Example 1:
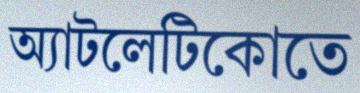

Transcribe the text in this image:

অ্যাটলেটিকোতে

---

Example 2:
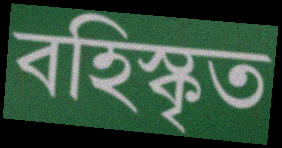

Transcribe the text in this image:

বহিস্কৃত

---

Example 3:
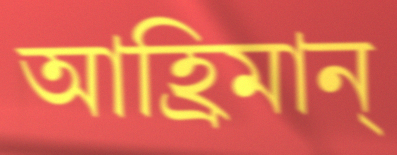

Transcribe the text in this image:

আহ্রিমান্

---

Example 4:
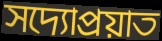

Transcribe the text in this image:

সদ্যোপ্রয়াত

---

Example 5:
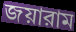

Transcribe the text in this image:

জয়ারাম